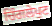
ਚਿੰਗਲੇਪੁਟ